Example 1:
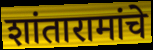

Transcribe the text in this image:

शांतारामांचे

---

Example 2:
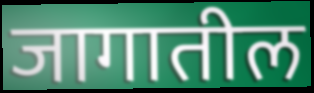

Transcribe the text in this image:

जागातील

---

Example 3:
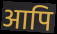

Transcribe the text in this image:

आपि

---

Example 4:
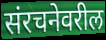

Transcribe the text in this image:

संरचनेवरील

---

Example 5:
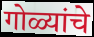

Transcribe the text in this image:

गोळ्यांचे